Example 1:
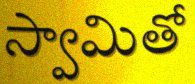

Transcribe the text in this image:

స్వామితో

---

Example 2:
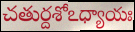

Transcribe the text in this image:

చతుర్దశోఽధ్యాయః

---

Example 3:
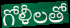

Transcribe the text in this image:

గోళీలతో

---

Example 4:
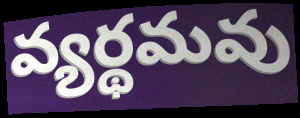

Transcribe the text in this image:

వ్యర్థమవు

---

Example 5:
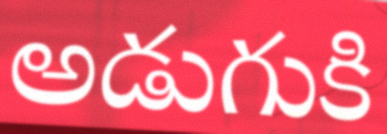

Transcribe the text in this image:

అడుగుకి